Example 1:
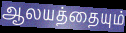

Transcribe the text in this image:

ஆலயத்தையும்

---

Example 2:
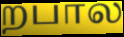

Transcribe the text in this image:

றபால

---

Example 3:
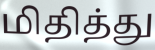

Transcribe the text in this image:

மிதித்து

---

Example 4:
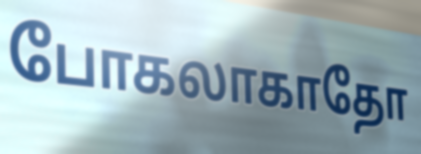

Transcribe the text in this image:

போகலாகாதோ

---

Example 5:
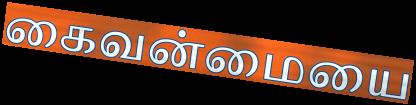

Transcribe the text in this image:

கைவன்மையை